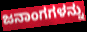
ಜನಾಂಗಗಳನ್ನು